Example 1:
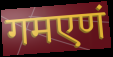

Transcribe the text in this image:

गमएणं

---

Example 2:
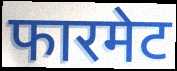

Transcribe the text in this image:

फारमेट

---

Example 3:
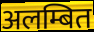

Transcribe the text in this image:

अलम्बित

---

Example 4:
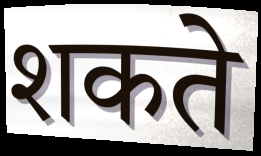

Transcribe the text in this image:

शकते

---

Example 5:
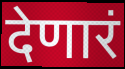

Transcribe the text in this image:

देणारं